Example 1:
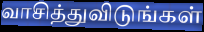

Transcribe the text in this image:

வாசித்துவிடுங்கள்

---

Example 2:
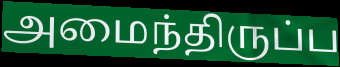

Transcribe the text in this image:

அமைந்திருப்ப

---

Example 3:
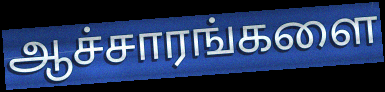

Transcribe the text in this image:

ஆச்சாரங்களை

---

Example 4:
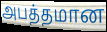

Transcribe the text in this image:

அபத்தமான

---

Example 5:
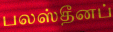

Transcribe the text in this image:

பலஸ்தீனப்